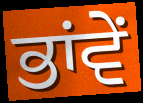
ਭਾਂਵੇਂ